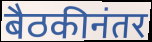
बैठकीनंतर